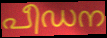
പീഡന